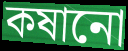
কষানো